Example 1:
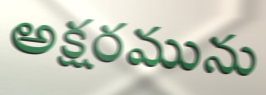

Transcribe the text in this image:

అక్షరమును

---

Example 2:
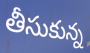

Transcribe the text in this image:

తీసుకున్న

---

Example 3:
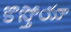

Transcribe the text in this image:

కొస్తోయా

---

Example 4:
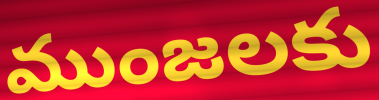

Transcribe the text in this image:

ముంజలకు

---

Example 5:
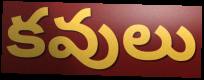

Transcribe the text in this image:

కవులు